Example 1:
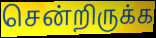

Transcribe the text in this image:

சென்றிருக்க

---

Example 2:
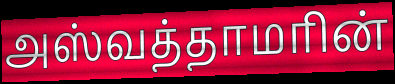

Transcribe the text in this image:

அஸ்வத்தாமரின்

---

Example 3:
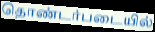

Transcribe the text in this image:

தொண்டர்படையில்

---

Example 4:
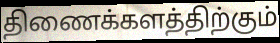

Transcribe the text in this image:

திணைக்களத்திற்கும்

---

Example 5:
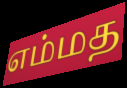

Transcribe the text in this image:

எம்மத